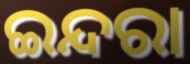
ଇନ୍ଦରା